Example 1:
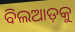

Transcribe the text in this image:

ବିଲଆଡ଼କୁ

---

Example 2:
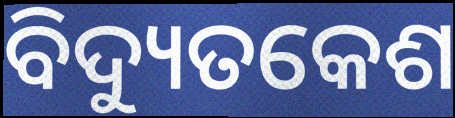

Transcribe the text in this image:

ବିଦ୍ୟୁତକେଶ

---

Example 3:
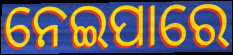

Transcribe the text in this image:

ନେଇପାରେ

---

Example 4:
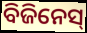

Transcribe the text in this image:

ବିଜିନେସ୍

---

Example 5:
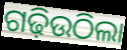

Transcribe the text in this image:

ଗଢ଼ିଉଠିଲା